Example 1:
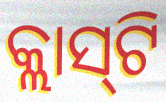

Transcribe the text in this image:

କ୍ଲାସ୍‌ଟି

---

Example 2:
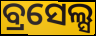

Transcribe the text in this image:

ବ୍ରସେଲ୍ସ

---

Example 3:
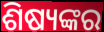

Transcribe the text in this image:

ଶିଷ୍ୟଙ୍କର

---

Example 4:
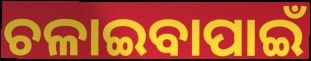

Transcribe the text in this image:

ଚଳାଇବାପାଇଁ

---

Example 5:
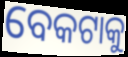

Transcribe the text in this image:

ବେକଟାକୁ